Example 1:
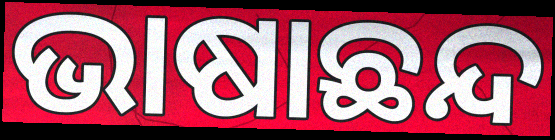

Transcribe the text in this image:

ଭାଷାଛନ୍ଦ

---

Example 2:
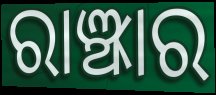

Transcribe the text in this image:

ରାଞ୍ଝାର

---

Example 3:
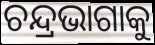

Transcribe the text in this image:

ଚନ୍ଦ୍ରଭାଗାକୁ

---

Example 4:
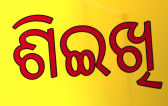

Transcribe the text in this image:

ଶିଇଖି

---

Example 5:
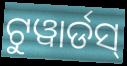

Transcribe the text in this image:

ଟୁୱାର୍ଡସ୍